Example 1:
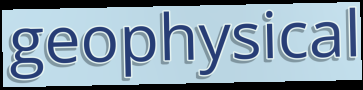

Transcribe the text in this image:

geophysical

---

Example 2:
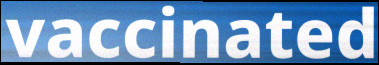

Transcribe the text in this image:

vaccinated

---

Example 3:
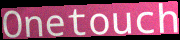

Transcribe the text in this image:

Onetouch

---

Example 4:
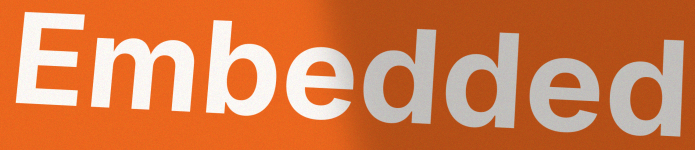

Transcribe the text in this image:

Embedded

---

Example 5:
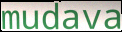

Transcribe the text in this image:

mudava